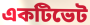
একটিভেট